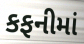
કફનીમાં